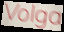
Volga